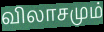
விலாசமும்